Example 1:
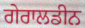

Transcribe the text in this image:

ਗੇਰਾਲਡੀਨ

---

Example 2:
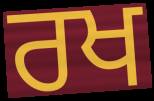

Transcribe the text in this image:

ਰਖ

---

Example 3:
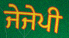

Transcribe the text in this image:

ਜੇਜੇਪੀ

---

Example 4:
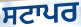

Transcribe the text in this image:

ਸਟਾਪਰ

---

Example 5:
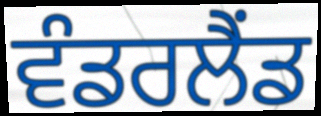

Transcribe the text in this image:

ਵੰਡਰਲੈਂਡ